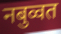
नबुव्वत